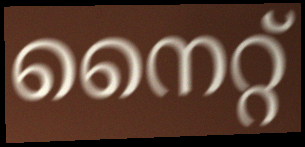
നൈറ്റ്